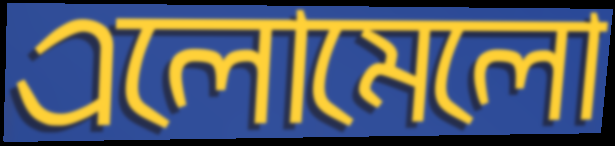
এলোমেলো